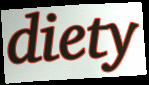
diety